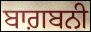
ਬਾਗ਼ਬਨੀ